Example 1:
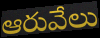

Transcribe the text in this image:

ఆరువేలు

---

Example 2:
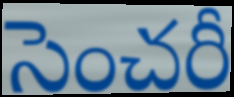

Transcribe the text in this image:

సెంచరీ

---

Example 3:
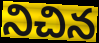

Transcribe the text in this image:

నిచిన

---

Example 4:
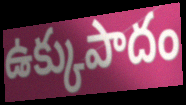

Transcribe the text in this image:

ఉక్కుపాదం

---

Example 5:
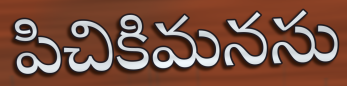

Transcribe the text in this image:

పిచికిమనసు